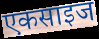
एकसाइज